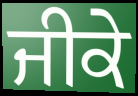
ਜੀਕੇ